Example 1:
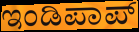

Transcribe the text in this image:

ಇಂಡಿಪಾಪ್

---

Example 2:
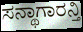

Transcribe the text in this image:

ಸನ್ಥಾಗಾರನ್ತಿ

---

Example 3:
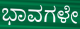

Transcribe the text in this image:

ಭಾವಗಳೇ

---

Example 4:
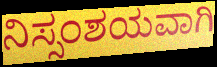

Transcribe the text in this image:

ನಿಸ್ಸಂಶಯವಾಗಿ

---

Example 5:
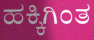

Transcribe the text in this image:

ಹಕ್ಕಿಗಿಂತ